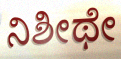
ನಿಶೀಥೇ